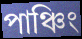
পাঞ্চিং